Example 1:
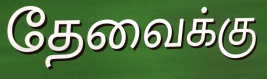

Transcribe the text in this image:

தேவைக்கு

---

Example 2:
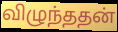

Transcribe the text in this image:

விழுந்ததன்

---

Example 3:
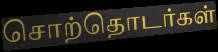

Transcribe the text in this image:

சொற்தொடர்கள்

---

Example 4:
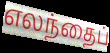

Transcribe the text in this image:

எலந்தைப்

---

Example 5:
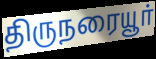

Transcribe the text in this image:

திருநரையூர்